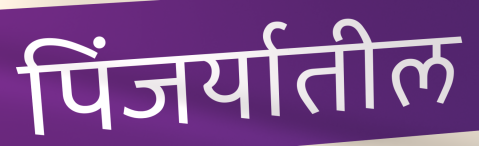
पिंजर्यातील